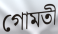
গোমতী